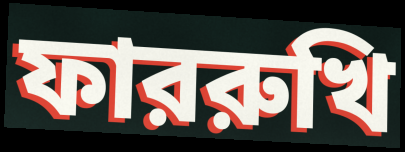
ফাররুখি